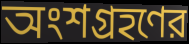
অংশগ্রহণের